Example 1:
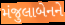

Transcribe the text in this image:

મંજુલાબેનને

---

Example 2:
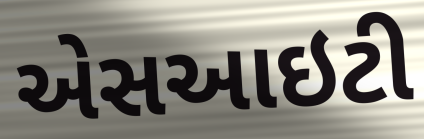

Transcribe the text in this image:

એસઆઇટી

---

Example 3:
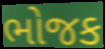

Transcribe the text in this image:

ભોજક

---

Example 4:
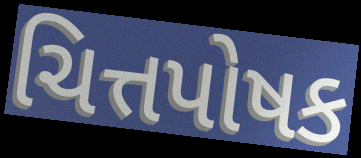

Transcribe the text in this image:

ચિત્તપોષક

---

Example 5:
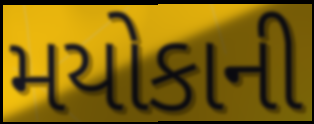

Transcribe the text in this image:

મયોકાની